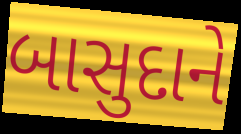
બાસુદાને